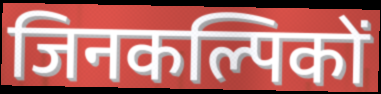
जिनकल्पिकों